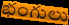
భంగులు